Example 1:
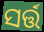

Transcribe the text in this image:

ସର୍ତ୍ତ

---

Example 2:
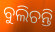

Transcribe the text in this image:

ବୁଲିଚନ୍ତି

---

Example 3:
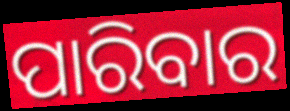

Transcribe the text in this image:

ପାରିବାର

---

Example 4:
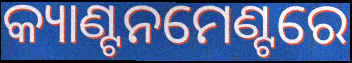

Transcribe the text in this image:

କ୍ୟାଣ୍ଟନମେଣ୍ଟରେ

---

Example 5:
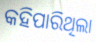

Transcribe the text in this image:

କହିପାରିଥିଲା